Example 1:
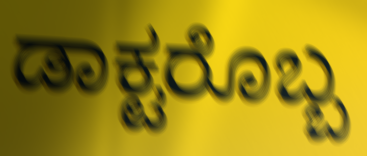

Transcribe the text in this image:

ಡಾಕ್ಟರೊಬ್ಬ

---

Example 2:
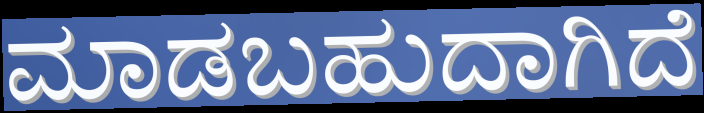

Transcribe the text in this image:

ಮಾಡಬಹುದಾಗಿದೆ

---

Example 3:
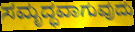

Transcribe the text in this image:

ಸಮೃದ್ಧವಾಗುವುದು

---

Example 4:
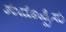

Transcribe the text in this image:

ತಂದೊಪ್ಪಿಸು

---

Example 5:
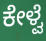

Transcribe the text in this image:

ಕೇಳ್ವೆ